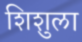
शिशुला